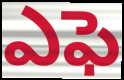
ఎఫె